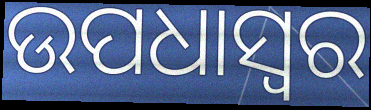
ଉପଧାସ୍ୱର